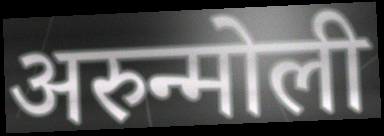
अरुन्मोली